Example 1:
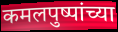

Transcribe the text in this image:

कमलपुष्पांच्या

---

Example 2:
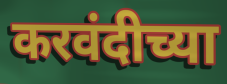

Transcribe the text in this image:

करवंदीच्या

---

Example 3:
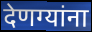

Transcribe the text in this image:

देणग्यांना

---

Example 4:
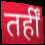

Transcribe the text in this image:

तर्हीं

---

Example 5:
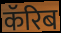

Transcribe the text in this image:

कॅरिब